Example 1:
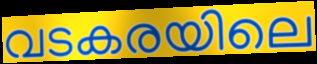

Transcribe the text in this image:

വടകരയിലെ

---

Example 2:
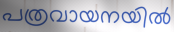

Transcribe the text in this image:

പത്രവായനയിൽ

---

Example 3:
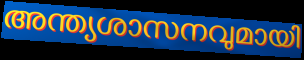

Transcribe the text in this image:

അന്ത്യശാസനവുമായി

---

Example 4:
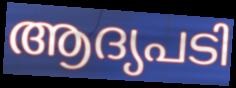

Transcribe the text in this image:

ആദ്യപടി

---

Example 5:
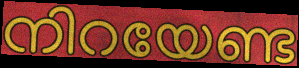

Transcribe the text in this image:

നിറയേണ്ട